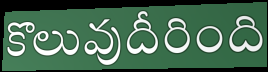
కొలువుదీరింది